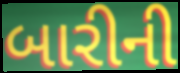
બારીની